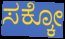
ಸಕ್ಕೋ